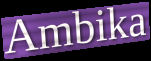
Ambika